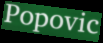
Popovic